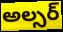
అల్సర్